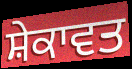
ਸ਼ੇਕਾਵਤ